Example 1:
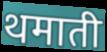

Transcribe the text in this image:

थमाती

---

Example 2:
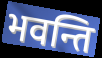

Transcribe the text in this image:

भवन्ति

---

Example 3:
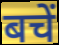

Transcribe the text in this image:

बचें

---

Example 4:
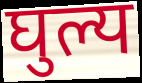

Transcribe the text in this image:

घुल्य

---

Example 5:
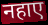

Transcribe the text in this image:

नहाए